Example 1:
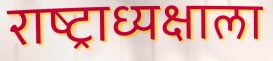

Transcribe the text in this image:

राष्ट्राध्यक्षाला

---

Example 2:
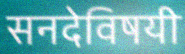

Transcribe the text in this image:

सनदेविषयी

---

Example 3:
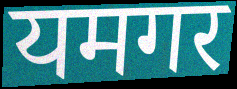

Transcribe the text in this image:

यमगर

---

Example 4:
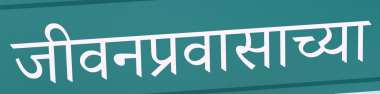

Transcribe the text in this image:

जीवनप्रवासाच्या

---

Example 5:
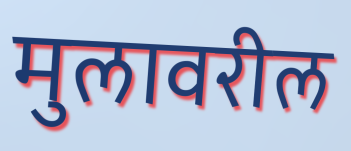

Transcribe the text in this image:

मुलावरील